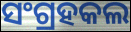
ସଂଗ୍ରହକଲ